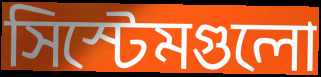
সিস্টেমগুলো